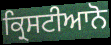
ਕ੍ਰਿਸਟੀਆਨੋ